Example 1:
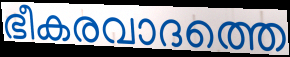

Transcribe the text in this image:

ഭീകരവാദത്തെ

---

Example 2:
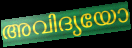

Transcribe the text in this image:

അവിദ്യയോ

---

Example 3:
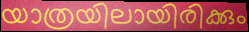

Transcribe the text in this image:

യാത്രയിലായിരിക്കും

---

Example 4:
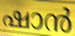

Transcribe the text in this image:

ഷാൻ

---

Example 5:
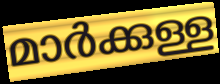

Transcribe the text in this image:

മാർക്കുള്ള